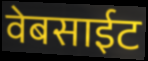
वेबसाईट